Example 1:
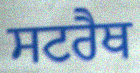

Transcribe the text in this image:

ਸਟਰੈਥ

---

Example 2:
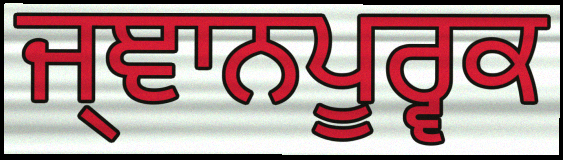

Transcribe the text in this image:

ਜ੍ਞਾਨਪੂਰ੍ਵਕ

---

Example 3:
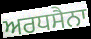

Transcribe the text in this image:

ਅਰਧਸੈਨਾ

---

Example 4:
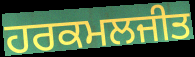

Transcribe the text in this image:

ਹਰਕਮਲਜੀਤ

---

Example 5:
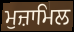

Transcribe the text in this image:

ਮੁਜ਼ਾਮਿਲ